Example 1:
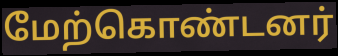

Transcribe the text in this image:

மேற்கொண்டனர்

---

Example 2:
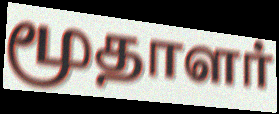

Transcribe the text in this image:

மூதாளர்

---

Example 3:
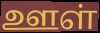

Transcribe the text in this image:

ஊள்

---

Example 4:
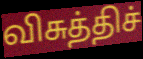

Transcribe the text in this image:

விசுத்திச்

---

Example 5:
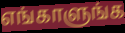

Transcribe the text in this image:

எங்காளுங்க